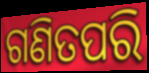
ଗଣିତପରି